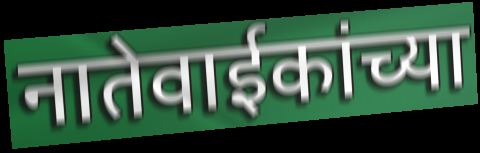
नातेवाईकांच्या